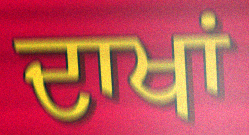
ਦਾਖਾਂ